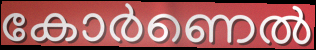
കോർണെൽ